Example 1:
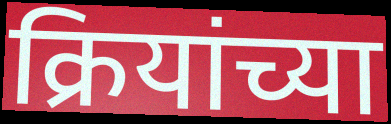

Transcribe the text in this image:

क्रियांच्या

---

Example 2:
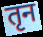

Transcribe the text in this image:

तृन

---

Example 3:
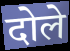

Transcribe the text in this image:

दोले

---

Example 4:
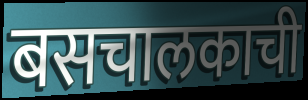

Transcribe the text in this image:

बसचालकाची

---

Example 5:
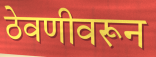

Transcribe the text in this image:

ठेवणीवरून